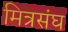
मित्रसंघ